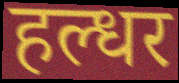
हल्धर